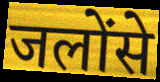
जलोंसे